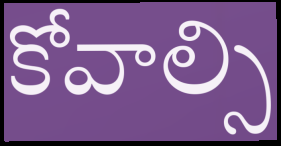
కోవాల్సి